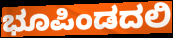
ಭೂಪಿಂಡದಲಿ